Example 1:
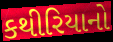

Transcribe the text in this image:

કથીરિયાનો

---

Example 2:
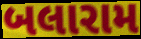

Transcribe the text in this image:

બલારામ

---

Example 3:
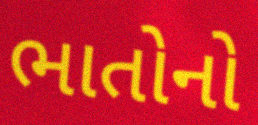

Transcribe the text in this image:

ભાતોનો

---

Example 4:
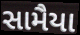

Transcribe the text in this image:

સામૈયા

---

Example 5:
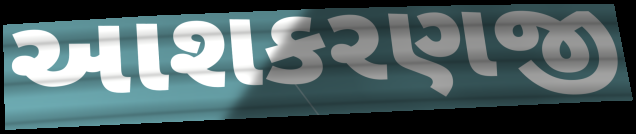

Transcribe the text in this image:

આશકરણજી